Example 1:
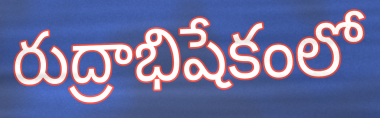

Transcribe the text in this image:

రుద్రాభిషేకంలో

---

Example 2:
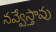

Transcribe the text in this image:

నవ్వేస్తావు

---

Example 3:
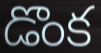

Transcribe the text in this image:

డొంక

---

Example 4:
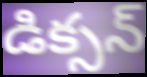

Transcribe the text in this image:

డిక్సన్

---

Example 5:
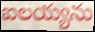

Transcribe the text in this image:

ఐలయ్యను